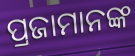
ପ୍ରଜାମାନଙ୍କ